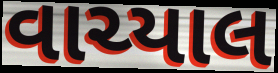
વાચ્યાલ